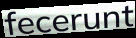
fecerunt